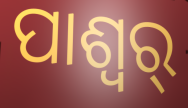
ପାଶ୍ୱର୍